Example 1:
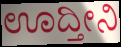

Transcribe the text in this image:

ಊದ್ತೀನಿ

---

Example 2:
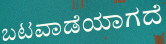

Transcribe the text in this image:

ಬಟವಾಡೆಯಾಗದೆ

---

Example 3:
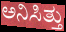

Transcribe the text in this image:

ಅನಿಸಿತ್ತು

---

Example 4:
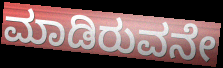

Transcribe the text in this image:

ಮಾಡಿರುವನೇ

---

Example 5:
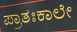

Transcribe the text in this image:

ಪ್ರಾತಃಕಾಲೇ